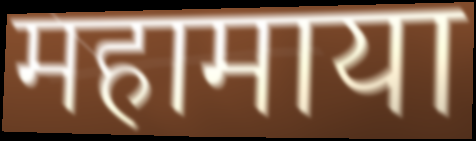
महामाया